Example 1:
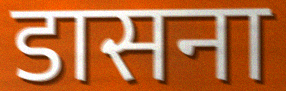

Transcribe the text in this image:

डासना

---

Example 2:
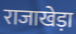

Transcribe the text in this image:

राजाखेड़ा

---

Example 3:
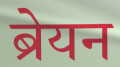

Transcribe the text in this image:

ब्रेयन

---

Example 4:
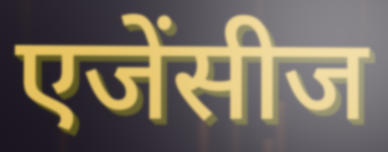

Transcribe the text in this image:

एजेंसीज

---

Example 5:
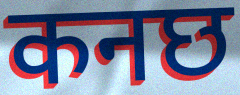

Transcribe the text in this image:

कनछ